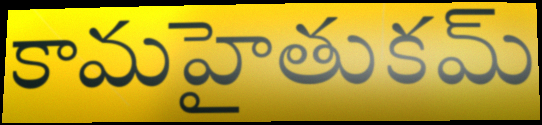
కామహైతుకమ్